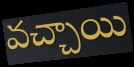
వచ్చాయి